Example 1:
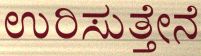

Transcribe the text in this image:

ಉರಿಸುತ್ತೇನೆ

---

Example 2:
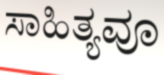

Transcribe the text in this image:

ಸಾಹಿತ್ಯವೂ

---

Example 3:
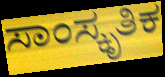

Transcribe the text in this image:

ಸಾಂಸ್ಕೃತಿಕ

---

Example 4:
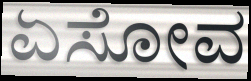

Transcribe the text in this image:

ಏಸೋವ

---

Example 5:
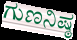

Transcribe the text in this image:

ಗುಣನಿಷ್ಠ